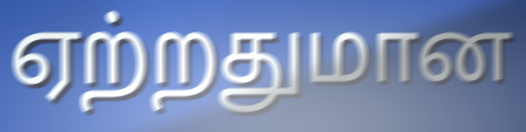
ஏற்றதுமான